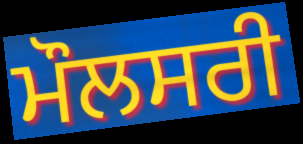
ਮੌਲਸਰੀ